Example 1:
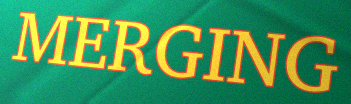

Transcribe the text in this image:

MERGING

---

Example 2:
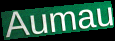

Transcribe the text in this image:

Aumau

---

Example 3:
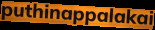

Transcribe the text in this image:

puthinappalakai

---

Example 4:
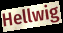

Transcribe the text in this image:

Hellwig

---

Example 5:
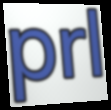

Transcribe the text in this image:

prl